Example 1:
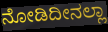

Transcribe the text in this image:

ನೋಡಿದೀನಲ್ಲಾ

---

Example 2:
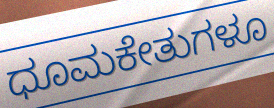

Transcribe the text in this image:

ಧೂಮಕೇತುಗಳೂ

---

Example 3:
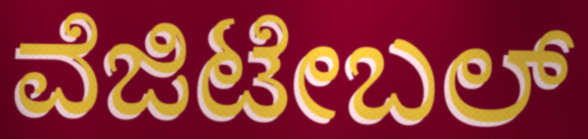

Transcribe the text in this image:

ವೆಜಿಟೇಬಲ್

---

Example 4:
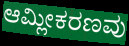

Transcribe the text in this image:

ಆಮ್ಲೀಕರಣವು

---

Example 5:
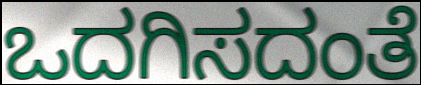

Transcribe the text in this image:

ಒದಗಿಸದಂತೆ